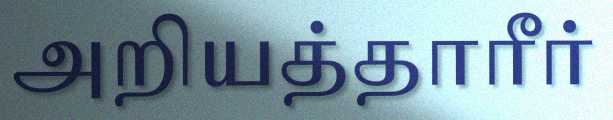
அறியத்தாரீர்